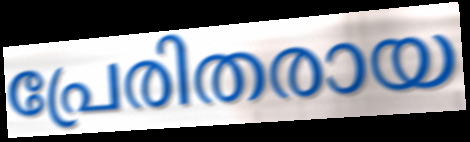
പ്രേരിതരായ